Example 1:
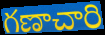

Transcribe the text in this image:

గణాచారి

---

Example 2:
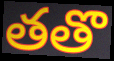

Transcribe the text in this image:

తతొ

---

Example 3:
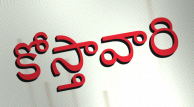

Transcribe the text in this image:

కోస్తావారి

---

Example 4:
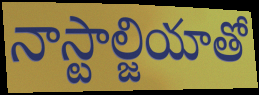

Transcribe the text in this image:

నాస్టాల్జియాతో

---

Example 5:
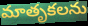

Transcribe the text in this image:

మాతృకలను